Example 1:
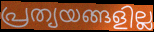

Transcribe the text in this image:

പ്രത്യയങ്ങളില്ല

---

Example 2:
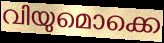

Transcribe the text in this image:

വിയുമൊക്കെ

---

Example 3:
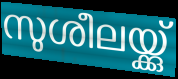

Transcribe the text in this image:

സുശീലയ്ക്കു്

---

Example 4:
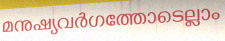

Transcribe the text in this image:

മനുഷ്യവർഗത്തോടെല്ലാം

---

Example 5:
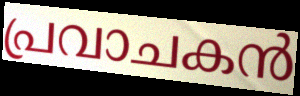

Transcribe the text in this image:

പ്രവാചകൻ